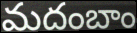
మదంబాం